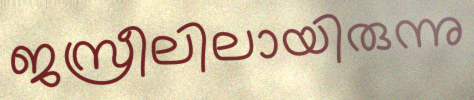
ജസ്രീലിലായിരുന്നു